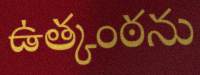
ఉత్కంఠను